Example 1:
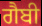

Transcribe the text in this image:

ਗੈਬੀ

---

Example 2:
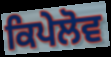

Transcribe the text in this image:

ਕਿਪੇਲੋਵ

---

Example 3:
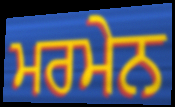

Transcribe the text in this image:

ਮਰਮੇਨ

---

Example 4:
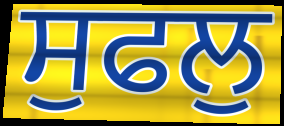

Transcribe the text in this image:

ਸੁਫਲੁ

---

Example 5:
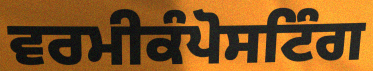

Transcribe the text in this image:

ਵਰਮੀਕੰਪੋਸਟਿੰਗ